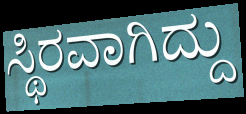
ಸ್ಥಿರವಾಗಿದ್ದು